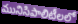
మునిసిపాలిటీలలో